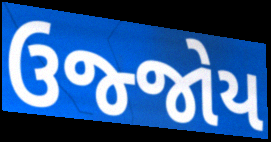
ઉજ્જોય